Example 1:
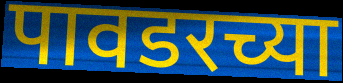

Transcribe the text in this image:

पावडरच्या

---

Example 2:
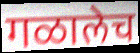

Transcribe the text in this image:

गळालेच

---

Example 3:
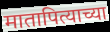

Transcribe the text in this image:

मातापित्याच्या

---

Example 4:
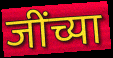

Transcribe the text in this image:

जींच्या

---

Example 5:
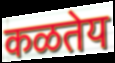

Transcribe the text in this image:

कळतेय